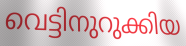
വെട്ടിനുറുക്കിയ